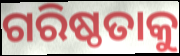
ଗରିଷ୍ଠତାକୁ